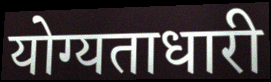
योग्यताधारी